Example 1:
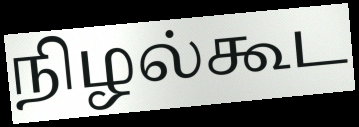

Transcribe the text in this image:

நிழல்கூட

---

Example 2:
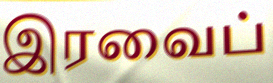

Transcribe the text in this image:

இரவைப்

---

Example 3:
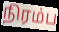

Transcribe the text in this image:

நிரம்ப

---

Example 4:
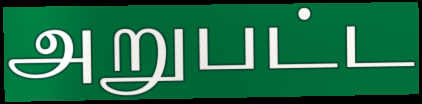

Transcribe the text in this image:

அறுபட்ட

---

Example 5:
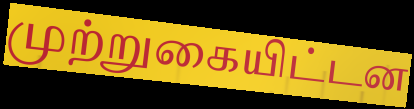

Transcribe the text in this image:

முற்றுகையிட்டன